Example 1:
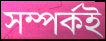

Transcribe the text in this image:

সম্পর্কই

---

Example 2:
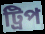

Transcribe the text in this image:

ট্রিপ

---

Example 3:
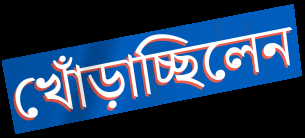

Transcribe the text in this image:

খোঁড়াচ্ছিলেন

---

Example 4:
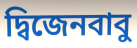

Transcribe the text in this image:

দ্বিজেনবাবু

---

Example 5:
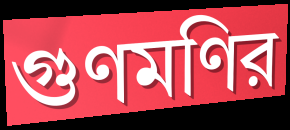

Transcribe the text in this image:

গুণমণির